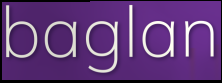
baglan